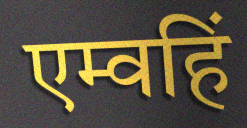
एम्वहिं